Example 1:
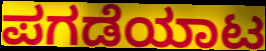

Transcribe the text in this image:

ಪಗಡೆಯಾಟ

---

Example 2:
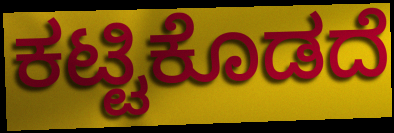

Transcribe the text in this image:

ಕಟ್ಟಿಕೊಡದೆ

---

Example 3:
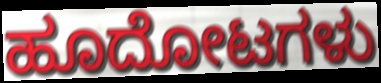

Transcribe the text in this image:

ಹೂದೋಟಗಳು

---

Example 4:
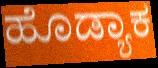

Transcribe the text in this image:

ಹೊಡ್ಯಾಕ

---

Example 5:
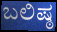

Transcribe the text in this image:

ಬಲಿಷ್ಠ